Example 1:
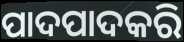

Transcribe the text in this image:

ପାଦପାଦକରି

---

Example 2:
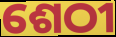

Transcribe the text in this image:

ଶେଠୀ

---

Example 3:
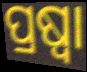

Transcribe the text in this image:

ପ୍ରଷ୍ୱା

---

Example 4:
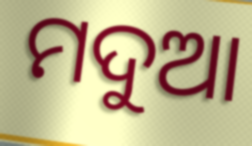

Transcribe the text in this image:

ମଦୁଆ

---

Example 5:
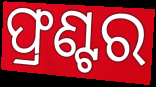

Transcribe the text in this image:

ଫ୍ରଣ୍ଟର